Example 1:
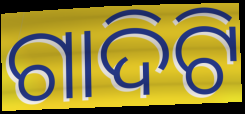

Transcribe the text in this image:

ଗାଦିଟି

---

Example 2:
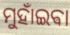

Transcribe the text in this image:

ମୁହାଁଇଵା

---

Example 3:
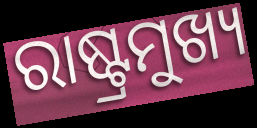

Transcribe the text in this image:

ରାଷ୍ଟ୍ରମୁଖ୍ୟ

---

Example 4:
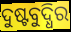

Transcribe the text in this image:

ଦୁଷ୍ଟବୁଦ୍ଧିର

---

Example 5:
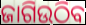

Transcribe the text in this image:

ଜାଗିଉଠିବ